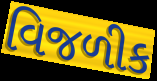
વિજળીક